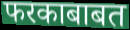
फरकाबाबत